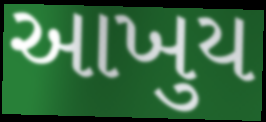
આખુય